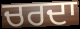
ਚਰਦਾ